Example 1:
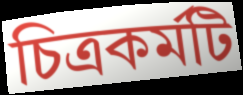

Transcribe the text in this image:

চিত্রকর্মটি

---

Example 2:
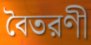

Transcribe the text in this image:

বৈতরণী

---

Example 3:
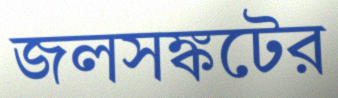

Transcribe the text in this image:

জলসঙ্কটের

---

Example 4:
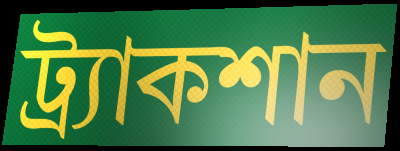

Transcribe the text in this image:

ট্র্যাকশান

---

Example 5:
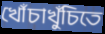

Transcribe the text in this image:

খোঁচাখুঁচিতে